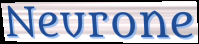
Neurone